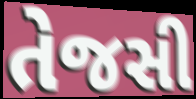
તેજસી